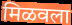
मिळवला